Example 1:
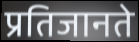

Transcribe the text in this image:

प्रतिजानते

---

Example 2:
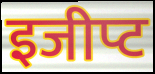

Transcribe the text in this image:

इजीप्ट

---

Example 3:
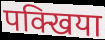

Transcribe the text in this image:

पक्खिया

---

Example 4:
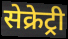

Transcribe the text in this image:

सेक्रेट्री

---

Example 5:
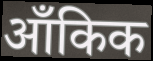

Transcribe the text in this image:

आँकिक